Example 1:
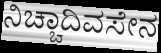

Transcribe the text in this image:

ನಿಚ್ಚಾದಿವಸೇನ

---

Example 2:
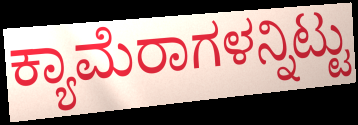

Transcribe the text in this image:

ಕ್ಯಾಮೆರಾಗಳನ್ನಿಟ್ಟು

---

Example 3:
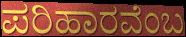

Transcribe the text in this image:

ಪರಿಹಾರವೆಂಬ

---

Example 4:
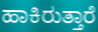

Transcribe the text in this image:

ಹಾಕಿರುತ್ತಾರೆ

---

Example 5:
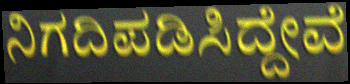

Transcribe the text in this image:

ನಿಗದಿಪಡಿಸಿದ್ದೇವೆ